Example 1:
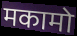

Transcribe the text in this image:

मकामो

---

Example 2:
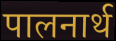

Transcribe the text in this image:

पालनार्थ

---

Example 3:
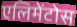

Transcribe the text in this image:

एलिमेंटोस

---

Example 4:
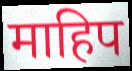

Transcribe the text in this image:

माहिप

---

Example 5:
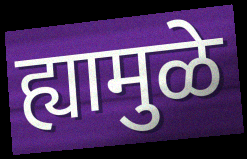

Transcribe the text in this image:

ह्यामुळे